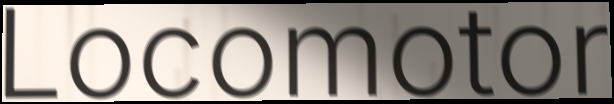
Locomotor